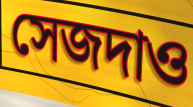
সেজদাও